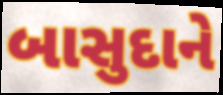
બાસુદાને